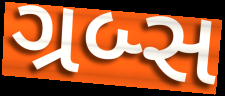
ગ્રબ્સ